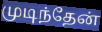
முடிந்தேன்